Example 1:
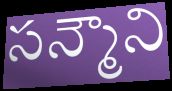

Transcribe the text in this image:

సన్మౌని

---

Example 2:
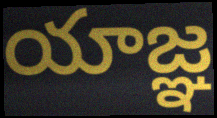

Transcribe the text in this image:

యాజ్ఞ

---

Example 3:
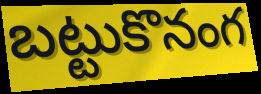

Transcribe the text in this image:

బట్టుకొనంగ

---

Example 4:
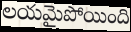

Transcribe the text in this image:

లయమైపోయింది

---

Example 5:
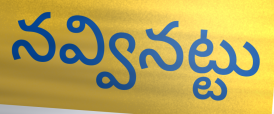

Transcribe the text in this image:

నవ్వినట్టు